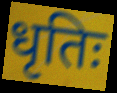
धृतिः